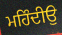
ਮਹਿੰਦੀਉ